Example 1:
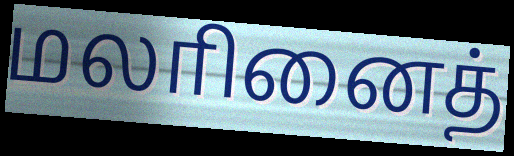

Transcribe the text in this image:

மலரினைத்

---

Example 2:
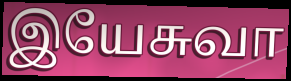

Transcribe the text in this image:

இயேசுவா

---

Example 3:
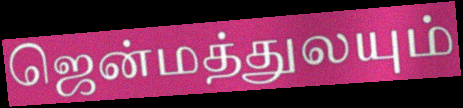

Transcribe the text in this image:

ஜென்மத்துலயும்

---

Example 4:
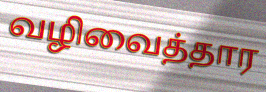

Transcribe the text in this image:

வழிவைத்தார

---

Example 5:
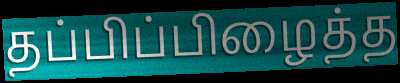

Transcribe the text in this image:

தப்பிப்பிழைத்த